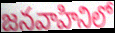
జనవాహినిలో